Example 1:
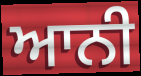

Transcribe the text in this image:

ਆਨੀ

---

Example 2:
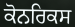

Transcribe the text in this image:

ਕੋਨਰਿਕਸ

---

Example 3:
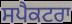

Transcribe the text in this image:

ਸਪੈਕਟਰਾ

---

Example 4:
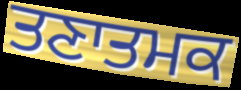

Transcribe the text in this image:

ਤਣਾਤਮਕ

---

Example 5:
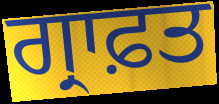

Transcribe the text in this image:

ਗ੍ਰਾਫ਼ਤ